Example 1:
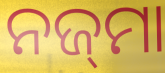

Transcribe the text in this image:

ନଜ୍‌ମା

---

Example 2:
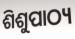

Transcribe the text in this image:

ଶିଶୁପାଠ୍ୟ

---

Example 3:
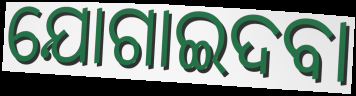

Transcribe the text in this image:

ଯୋଗାଇଦବା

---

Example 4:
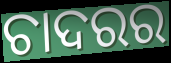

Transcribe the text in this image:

ଚାଦରର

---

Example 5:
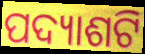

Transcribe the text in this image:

ପଦ୍ୟାଶଟି